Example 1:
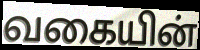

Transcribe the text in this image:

வகையின்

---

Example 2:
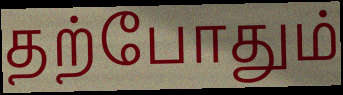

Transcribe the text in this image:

தற்போதும்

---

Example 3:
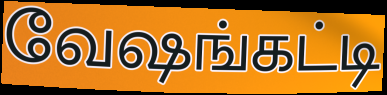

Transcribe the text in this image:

வேஷங்கட்டி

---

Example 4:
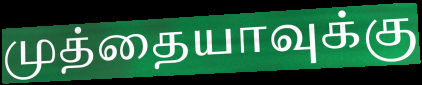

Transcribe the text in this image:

முத்தையாவுக்கு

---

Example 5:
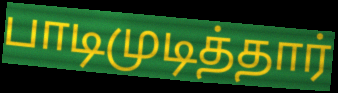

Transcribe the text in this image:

பாடிமுடித்தார்